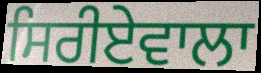
ਸਿਰੀਏਵਾਲਾ